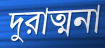
দুরাত্মনা